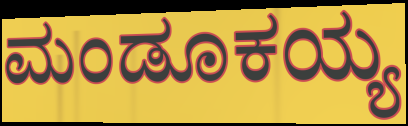
ಮಂಡೂಕಯ್ಯ